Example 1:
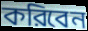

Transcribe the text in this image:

করিবেন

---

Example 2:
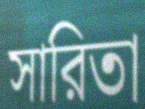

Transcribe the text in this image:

সারিতা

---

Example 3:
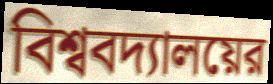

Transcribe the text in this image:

বিশ্ববদ্যালয়ের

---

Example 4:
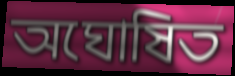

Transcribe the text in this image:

অঘোষিত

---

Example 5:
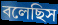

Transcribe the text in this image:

বলেছিস